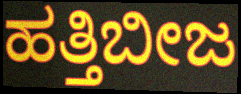
ಹತ್ತಿಬೀಜ